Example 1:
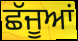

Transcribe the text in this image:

ਛੱਜੂਆਂ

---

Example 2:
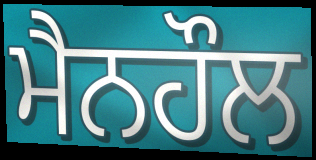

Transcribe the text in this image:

ਮੈਨਹੌਲ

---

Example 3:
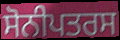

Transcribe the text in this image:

ਸੋਨੀਪਤਰਸ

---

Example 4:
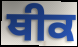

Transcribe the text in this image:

ਥੀਕ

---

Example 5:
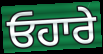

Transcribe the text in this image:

ਓਹਾਰੇ